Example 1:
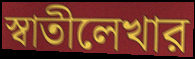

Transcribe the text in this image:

স্বাতীলেখার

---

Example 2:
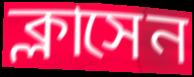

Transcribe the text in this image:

ক্লাসেন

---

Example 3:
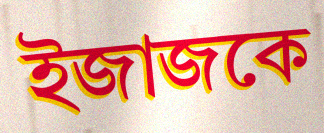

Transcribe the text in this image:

ইজাজকে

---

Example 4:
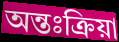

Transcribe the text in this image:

অন্তঃক্রিয়া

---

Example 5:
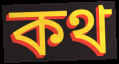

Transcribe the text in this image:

কথ